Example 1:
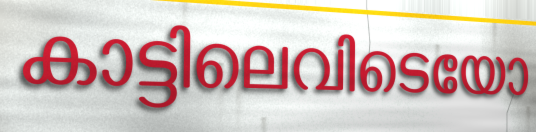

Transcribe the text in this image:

കാട്ടിലെവിടെയോ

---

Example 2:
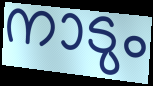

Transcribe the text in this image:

നാടും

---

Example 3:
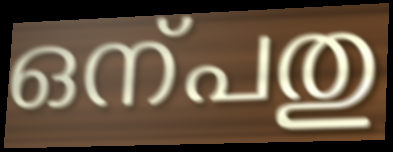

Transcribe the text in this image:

ഒന്പതു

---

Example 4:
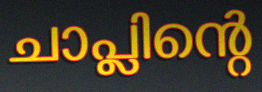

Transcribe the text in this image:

ചാപ്ലിന്റെ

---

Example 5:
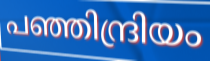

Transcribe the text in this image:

പഞ്ഞിന്ദ്രിയം